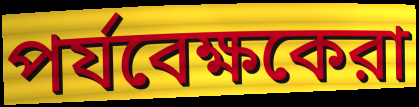
পর্যবেক্ষকেরা